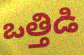
ఒత్తిడి